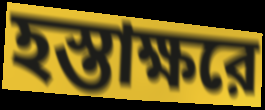
হস্তাক্ষরে